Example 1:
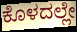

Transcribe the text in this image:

ಕೊಳದಲ್ಲೇ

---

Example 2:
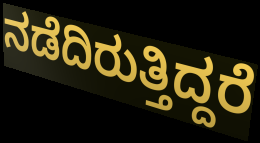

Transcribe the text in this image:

ನಡೆದಿರುತ್ತಿದ್ದರೆ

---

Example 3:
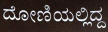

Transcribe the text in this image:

ದೋಣಿಯಲ್ಲಿದ್ದ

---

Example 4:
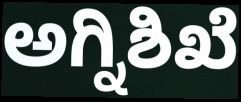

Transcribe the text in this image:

ಅಗ್ನಿಶಿಖೆ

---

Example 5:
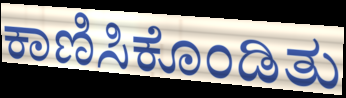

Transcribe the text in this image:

ಕಾಣಿಸಿಕೊಂಡಿತು